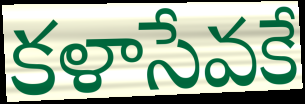
కళాసేవకే